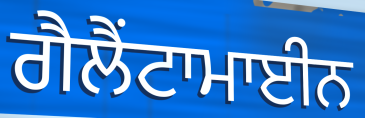
ਗੈਲੈਂਟਾਮਾਈਨ